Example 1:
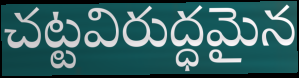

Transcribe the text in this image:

చట్టవిరుద్ధమైన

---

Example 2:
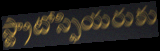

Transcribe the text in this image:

స్ట్రాటోస్ఫియరుకు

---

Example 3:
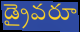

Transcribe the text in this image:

డ్రైవరూ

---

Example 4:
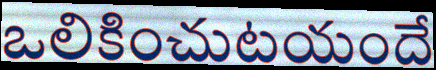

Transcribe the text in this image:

ఒలికించుటయందే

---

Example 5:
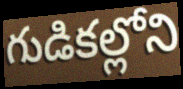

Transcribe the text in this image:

గుడికల్లోని